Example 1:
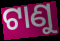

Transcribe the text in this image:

ଟାଣୁ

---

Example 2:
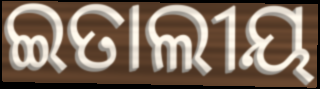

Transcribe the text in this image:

ଇତାଲୀୟ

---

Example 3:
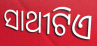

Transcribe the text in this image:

ସାଥୀଟିଏ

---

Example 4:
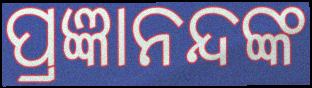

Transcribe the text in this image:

ପ୍ରଜ୍ଞାନନ୍ଦଙ୍କ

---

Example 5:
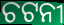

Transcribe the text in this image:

ଚଟନୀ